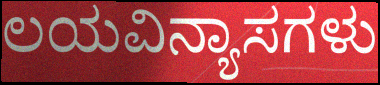
ಲಯವಿನ್ಯಾಸಗಳು